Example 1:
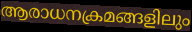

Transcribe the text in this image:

ആരാധനക്രമങ്ങളിലും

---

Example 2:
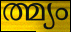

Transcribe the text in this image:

ത്മ്യം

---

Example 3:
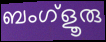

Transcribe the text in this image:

ബംഗ്ളൂരു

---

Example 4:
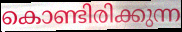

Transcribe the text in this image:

കൊണ്ടിരിക്കുന്ന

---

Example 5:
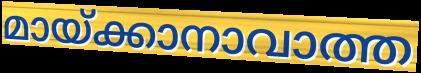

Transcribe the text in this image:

മായ്ക്കാനാവാത്ത